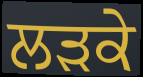
ਲਡ਼ਕੇ